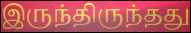
இருந்திருந்தது